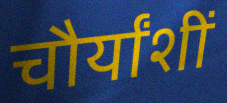
चौर्यांशीं